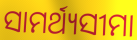
ସାମର୍ଥ୍ୟସୀମା